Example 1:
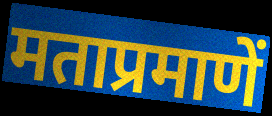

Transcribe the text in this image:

मताप्रमाणें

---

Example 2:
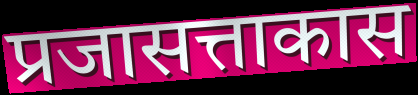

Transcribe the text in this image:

प्रजासत्ताकास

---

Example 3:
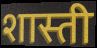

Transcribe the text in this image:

शास्ती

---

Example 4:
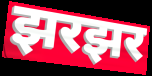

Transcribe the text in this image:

झरझर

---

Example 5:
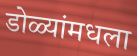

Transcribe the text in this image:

डोळ्यांमधला